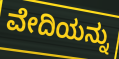
ವೇದಿಯನ್ನು